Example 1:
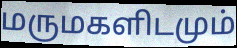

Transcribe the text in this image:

மருமகளிடமும்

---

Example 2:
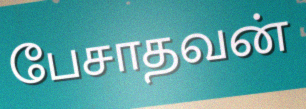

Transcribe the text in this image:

பேசாதவன்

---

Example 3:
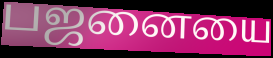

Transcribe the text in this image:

பஜனையை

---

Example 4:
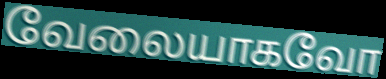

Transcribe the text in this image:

வேலையாகவோ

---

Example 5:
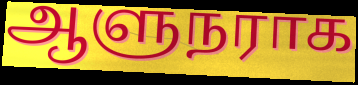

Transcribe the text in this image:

ஆளுநராக